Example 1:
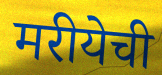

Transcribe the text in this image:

मरीयेची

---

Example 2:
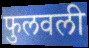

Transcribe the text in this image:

फुलवली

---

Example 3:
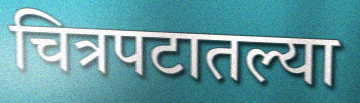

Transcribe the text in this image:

चित्रपटातल्या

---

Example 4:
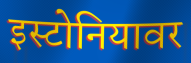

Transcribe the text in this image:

इस्टोनियावर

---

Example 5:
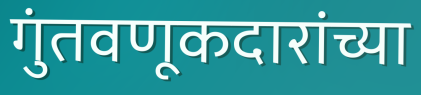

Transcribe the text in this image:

गुंतवणूकदारांच्या